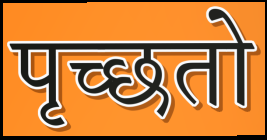
पृच्छतो